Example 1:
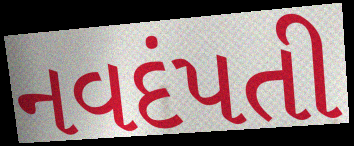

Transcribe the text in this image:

નવદંપતી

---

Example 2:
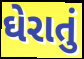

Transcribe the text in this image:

ઘેરાતું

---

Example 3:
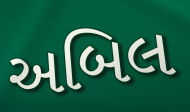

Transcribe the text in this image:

અબિલ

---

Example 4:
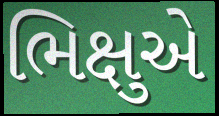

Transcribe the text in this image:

ભિક્ષુએ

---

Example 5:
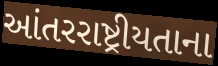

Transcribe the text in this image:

આંતરરાષ્ટ્રીયતાના